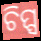
ଚିପ୍ସ